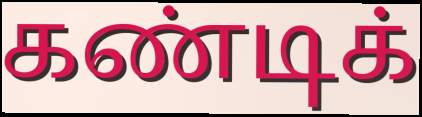
கண்டிக்